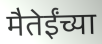
मैतेईंच्या